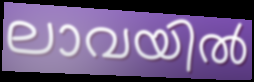
ലാവയിൽ